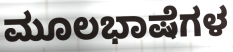
ಮೂಲಭಾಷೆಗಳ